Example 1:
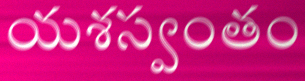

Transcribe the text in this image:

యశస్వంతం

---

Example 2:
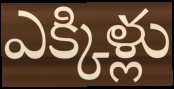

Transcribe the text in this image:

ఎక్కిళ్లు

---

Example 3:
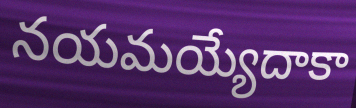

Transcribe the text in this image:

నయమయ్యేదాకా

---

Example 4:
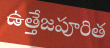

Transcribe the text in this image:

ఉత్తేజపూరిత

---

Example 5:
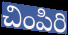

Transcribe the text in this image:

చింపిరి